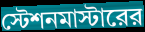
স্টেশনমাস্টারের